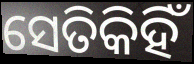
ସେତିକିହିଁ